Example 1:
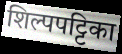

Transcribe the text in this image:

शिल्पपट्टिका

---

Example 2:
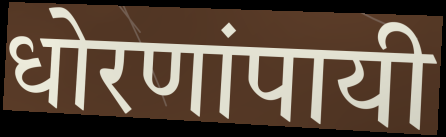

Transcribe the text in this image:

धोरणांपायी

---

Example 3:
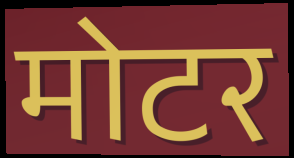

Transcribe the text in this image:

मोटर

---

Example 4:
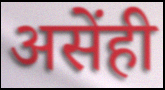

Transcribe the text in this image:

असेंही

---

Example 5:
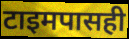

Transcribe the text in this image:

टाइमपासही